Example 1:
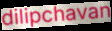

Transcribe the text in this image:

dilipchavan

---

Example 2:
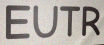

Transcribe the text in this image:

EUTR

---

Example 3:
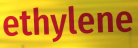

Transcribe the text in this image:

ethylene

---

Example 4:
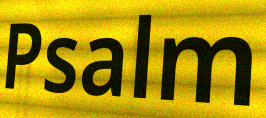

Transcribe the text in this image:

Psalm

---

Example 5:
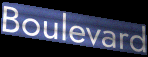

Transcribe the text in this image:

Boulevard